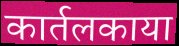
कार्तलकाया